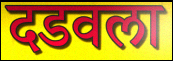
दडवला